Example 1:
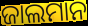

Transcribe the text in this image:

ଜାଲମାନ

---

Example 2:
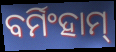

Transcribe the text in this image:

ବର୍ମିଂହାମ୍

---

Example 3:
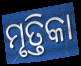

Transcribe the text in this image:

ମୃତ୍ତିକା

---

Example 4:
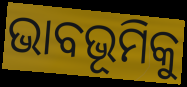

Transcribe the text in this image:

ଭାବଭୂମିକୁ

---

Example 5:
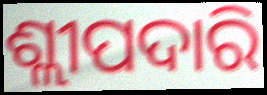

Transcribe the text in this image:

ଶ୍ଲୀପଦାରି